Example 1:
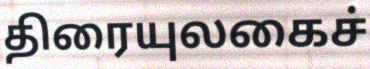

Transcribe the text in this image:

திரையுலகைச்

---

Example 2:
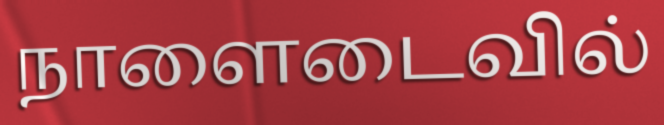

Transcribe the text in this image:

நாளைடைவில்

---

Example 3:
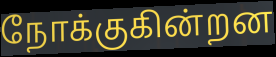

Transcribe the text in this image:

நோக்குகின்றன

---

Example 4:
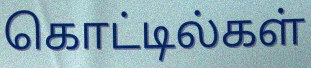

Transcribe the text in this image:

கொட்டில்கள்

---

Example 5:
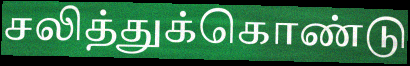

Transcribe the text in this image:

சலித்துக்கொண்டு